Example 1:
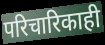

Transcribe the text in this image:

परिचारिकाही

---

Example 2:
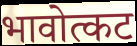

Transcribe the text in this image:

भावोत्कट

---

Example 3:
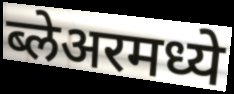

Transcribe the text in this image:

ब्लेअरमध्ये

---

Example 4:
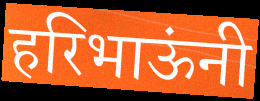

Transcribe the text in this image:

हरिभाऊंनी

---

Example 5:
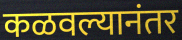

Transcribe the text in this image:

कळवल्यानंतर